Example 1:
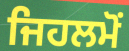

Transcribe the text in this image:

ਜਿਹਲਮੋਂ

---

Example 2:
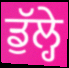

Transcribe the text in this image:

ਡੁੱਲ੍ਹੇ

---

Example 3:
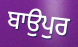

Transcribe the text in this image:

ਬਾਉਪੁਰ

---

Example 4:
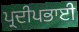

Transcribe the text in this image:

ਪ੍ਰਦੀਪਭਾਈ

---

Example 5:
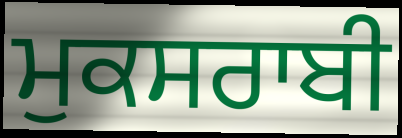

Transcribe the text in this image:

ਮੁਕਸਰਾਬੀ